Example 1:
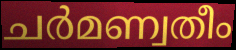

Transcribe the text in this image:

ചർമണ്വതീം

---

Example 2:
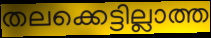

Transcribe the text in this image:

തലക്കെട്ടില്ലാത്ത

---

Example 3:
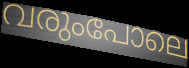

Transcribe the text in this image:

വരുംപോലെ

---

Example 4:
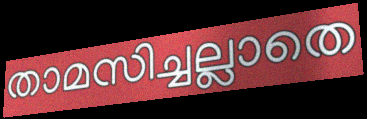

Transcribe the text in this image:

താമസിച്ചല്ലാതെ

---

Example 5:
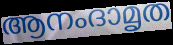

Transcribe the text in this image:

ആനംദാമൃത